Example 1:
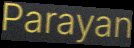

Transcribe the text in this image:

Parayan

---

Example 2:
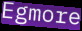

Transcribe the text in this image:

Egmore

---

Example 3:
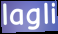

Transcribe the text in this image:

lagli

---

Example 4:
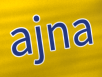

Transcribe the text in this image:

ajna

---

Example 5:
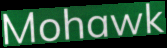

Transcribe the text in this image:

Mohawk